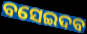
ବସେଇଦବ